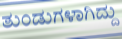
ತುಂಡುಗಳಾಗಿದ್ದು